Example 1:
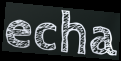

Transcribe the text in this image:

echa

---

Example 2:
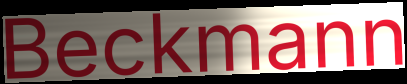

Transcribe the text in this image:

Beckmann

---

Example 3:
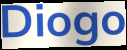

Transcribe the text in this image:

Diogo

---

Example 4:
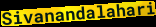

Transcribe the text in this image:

Sivanandalahari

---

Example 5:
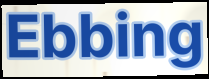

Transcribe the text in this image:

Ebbing